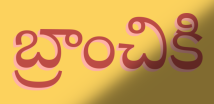
బ్రాంచికి